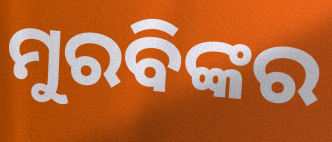
ମୁରବିଙ୍କର